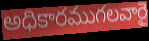
అధికారముగలవారై